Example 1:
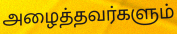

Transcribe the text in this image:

அழைத்தவர்களும்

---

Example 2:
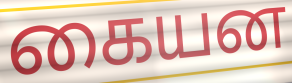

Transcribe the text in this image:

கையன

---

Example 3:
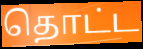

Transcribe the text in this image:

தொட்ட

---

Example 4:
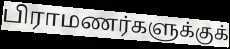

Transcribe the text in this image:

பிராமணர்களுக்குக்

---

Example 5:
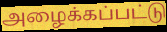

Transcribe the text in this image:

அழைக்கப்பட்டு